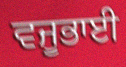
ਵਜੂਭਾਈ